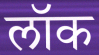
लॉक